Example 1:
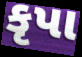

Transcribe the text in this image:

કૃપા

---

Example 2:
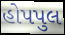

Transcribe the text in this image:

હોપપુલ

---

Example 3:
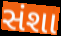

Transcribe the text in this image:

સંશા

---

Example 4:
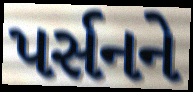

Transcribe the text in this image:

પર્સનને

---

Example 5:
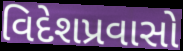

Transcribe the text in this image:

વિદેશપ્રવાસો